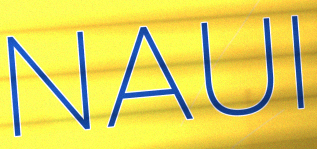
NAUI